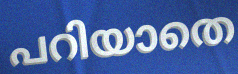
പറിയാതെ